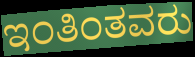
ಇಂತಿಂತವರು